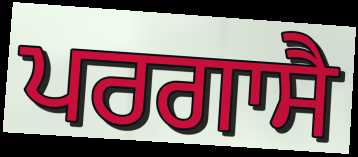
ਪਰਗਾਸੈ